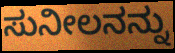
ಸುನೀಲನನ್ನು